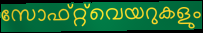
സോഫ്റ്റ്‌വെയറുകളും